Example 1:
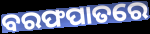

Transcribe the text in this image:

ବରଫପାତରେ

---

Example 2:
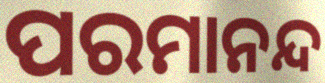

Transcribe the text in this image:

ପରମାନନ୍ଦ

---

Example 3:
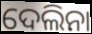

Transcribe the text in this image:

ଦେଲିନା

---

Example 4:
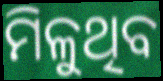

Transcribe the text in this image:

ମିଳୁଥିବ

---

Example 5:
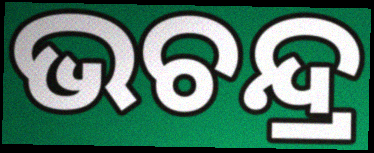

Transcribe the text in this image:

ଭଚନ୍ଦ୍ର